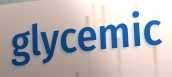
glycemic